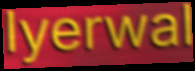
Iyerwal